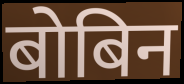
बोबिन